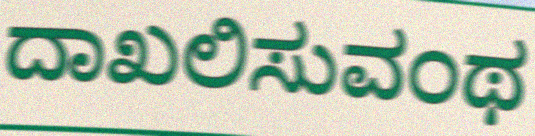
ದಾಖಲಿಸುವಂಥ